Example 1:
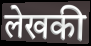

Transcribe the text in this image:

लेखकी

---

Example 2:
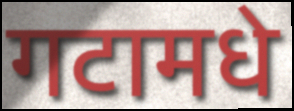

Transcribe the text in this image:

गटामधे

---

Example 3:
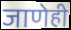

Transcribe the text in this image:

जाणेही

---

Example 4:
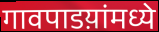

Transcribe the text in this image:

गावपाडय़ांमध्ये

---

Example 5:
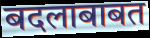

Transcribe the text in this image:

बदलाबाबत